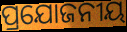
ପ୍ରଯୋଜନୀୟ